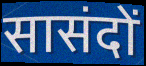
सासंदों